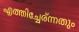
എത്തിച്ചേര്ന്നതും